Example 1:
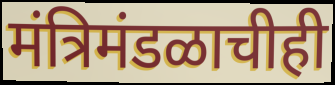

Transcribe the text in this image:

मंत्रिमंडळाचीही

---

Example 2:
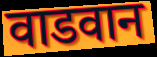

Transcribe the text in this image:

वाडवान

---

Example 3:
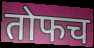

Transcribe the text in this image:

तोफच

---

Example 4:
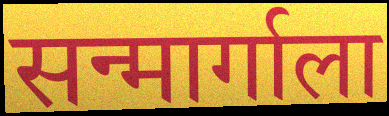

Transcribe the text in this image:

सन्मार्गाला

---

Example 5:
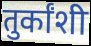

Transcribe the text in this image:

तुर्कांशी